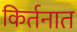
किर्तनात